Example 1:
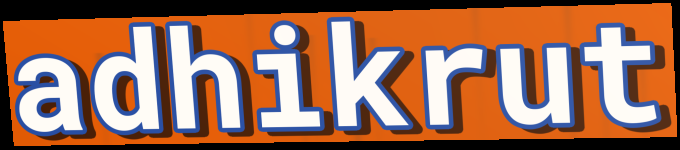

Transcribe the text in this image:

adhikrut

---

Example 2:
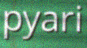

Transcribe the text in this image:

pyari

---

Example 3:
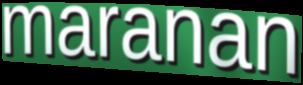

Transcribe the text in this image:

maranan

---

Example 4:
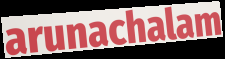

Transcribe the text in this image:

arunachalam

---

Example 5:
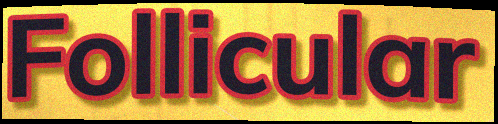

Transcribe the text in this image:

Follicular